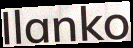
Ilanko